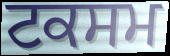
ਟਕਸਮ